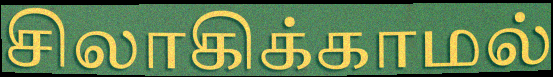
சிலாகிக்காமல்